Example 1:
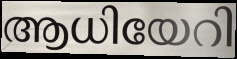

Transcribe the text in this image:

ആധിയേറി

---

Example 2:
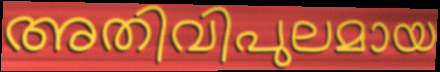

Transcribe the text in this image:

അതിവിപുലമായ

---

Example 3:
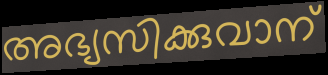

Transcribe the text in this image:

അഭ്യസിക്കുവാന്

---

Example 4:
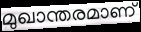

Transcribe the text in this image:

മുഖാന്തരമാണ്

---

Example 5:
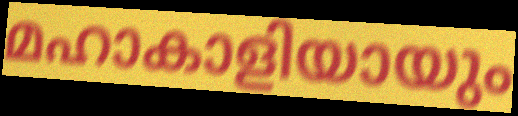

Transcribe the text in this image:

മഹാകാളിയായും